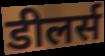
डीलर्स